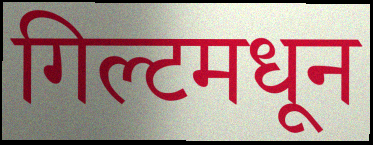
गिल्टमधून